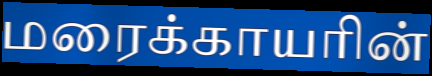
மரைக்காயரின்